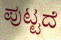
ಪುಟ್ಟದೆ